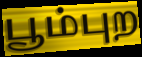
பூம்புற